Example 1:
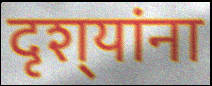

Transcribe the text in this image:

दृश्यांना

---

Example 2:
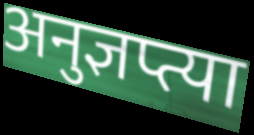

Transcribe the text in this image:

अनुज्ञप्त्या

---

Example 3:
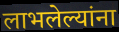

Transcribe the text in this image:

लाभलेल्यांना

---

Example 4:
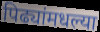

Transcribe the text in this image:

पिढ्यांमधल्या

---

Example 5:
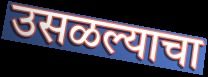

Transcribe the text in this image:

उसळल्याचा